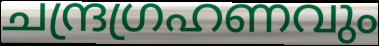
ചന്ദ്രഗ്രഹണവും